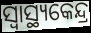
ସ୍ବାସ୍ଥ୍ୟକେନ୍ଦ୍ର